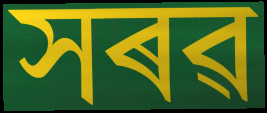
সৰৱ